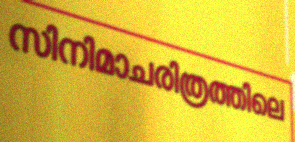
സിനിമാചരിത്രത്തിലെ